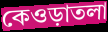
কেওড়াতলা